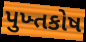
પુખ્તકોષ